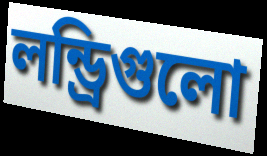
লন্ড্রিগুলো